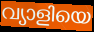
വ്യാളിയെ